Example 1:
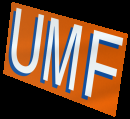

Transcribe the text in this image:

UMF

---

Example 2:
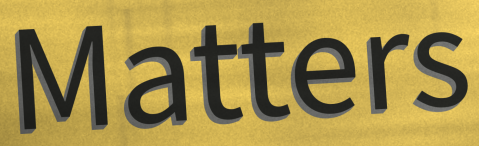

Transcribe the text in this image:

Matters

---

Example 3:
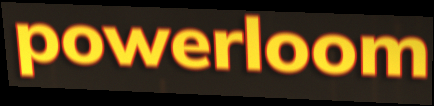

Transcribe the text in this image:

powerloom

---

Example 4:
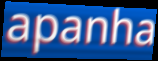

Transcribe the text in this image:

apanha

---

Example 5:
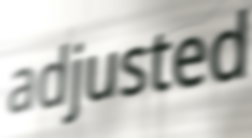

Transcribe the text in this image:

adjusted